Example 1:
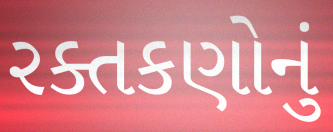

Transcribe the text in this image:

રક્તકણોનું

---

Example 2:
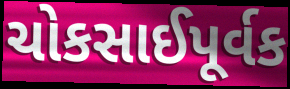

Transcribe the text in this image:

ચોકસાઈપૂર્વક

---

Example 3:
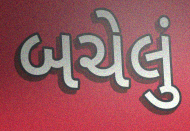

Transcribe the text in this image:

બચેલું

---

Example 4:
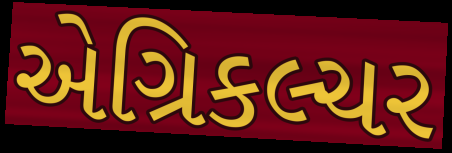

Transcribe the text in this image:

એગ્રિકલ્ચર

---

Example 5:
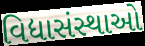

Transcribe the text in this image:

વિદ્યાસંસ્થાઓ